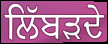
ਲਿੱਬੜਦੇ